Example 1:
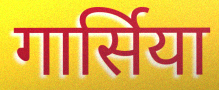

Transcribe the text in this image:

गार्सिया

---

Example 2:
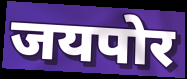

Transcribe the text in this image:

जयपोर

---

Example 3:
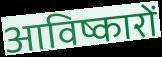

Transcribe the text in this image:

आविष्‍कारों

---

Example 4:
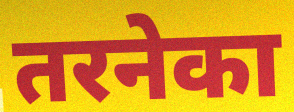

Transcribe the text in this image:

तरनेका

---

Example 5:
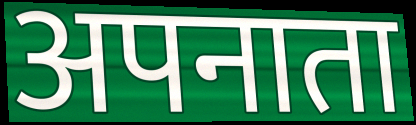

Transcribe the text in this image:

अपनाता